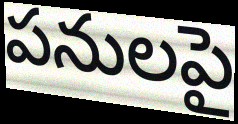
పనులపై